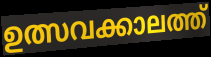
ഉത്സവക്കാലത്ത്